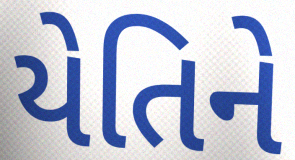
યેતિને